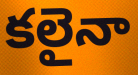
కలైనా